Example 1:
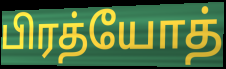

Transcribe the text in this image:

பிரத்யோத்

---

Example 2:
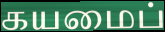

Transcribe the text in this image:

கயமைப்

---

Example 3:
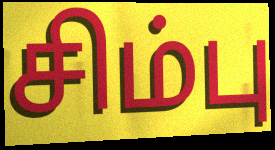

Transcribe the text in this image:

சிம்பு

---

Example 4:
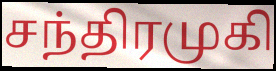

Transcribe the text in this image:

சந்திரமுகி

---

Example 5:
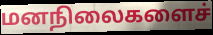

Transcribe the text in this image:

மனநிலைகளைச்